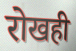
रोखही